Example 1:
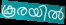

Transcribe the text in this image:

കൂരയിൽ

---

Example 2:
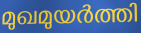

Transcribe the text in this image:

മുഖമുയർത്തി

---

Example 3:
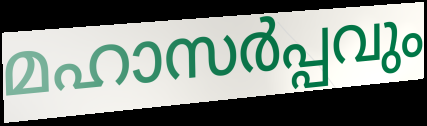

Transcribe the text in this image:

മഹാസർപ്പവും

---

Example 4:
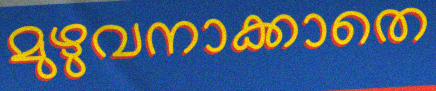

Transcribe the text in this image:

മുഴുവനാക്കാതെ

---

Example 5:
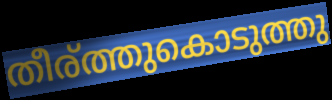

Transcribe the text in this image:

തീര്ത്തുകൊടുത്തു